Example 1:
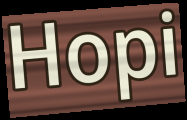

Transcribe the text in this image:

Hopi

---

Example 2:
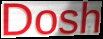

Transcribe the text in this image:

Dosh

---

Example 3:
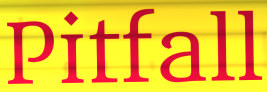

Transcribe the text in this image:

Pitfall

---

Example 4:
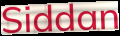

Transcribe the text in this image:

Siddan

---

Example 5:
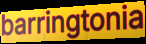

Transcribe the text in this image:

barringtonia